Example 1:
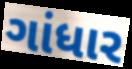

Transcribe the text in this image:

ગાંધાર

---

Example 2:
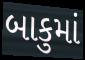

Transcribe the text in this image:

બાકુમાં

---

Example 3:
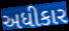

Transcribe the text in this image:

અધીકાર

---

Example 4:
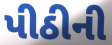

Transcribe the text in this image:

પીઠીની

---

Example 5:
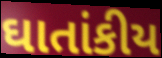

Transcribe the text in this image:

ઘાતાંકીય